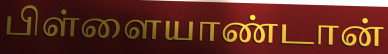
பிள்ளையாண்டான்